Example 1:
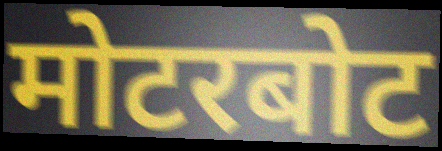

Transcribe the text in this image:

मोटरबोट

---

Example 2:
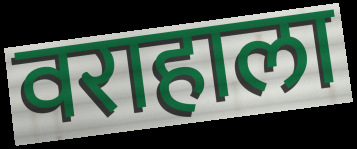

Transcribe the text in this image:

वराहाला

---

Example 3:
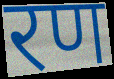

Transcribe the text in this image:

रण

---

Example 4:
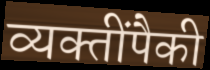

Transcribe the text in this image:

व्यक्‍तींपैकी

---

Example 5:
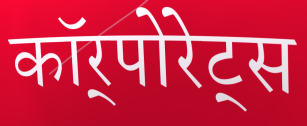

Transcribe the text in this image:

कॉर्पोरेट्‌स